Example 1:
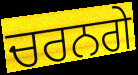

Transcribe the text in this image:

ਚਰਨਗੇ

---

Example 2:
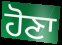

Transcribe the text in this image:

ਹੋਣਾ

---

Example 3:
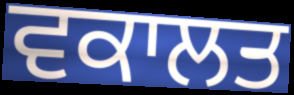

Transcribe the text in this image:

ਵਕਾਲਤ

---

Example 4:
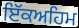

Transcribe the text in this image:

ਇੱਕਅਹਿਮ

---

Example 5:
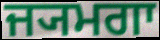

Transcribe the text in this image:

ਜ੍ਯਮਗਾ